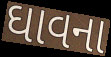
ઘાવના